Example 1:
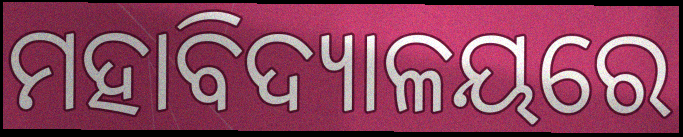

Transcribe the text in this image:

ମହାବିଦ୍ୟାଳୟରେ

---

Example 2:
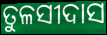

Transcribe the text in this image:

ତୁଳସୀଦାସ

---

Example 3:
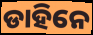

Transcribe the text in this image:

ଡାହିନେ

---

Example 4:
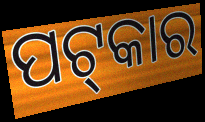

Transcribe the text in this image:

ପଟ୍‌କାର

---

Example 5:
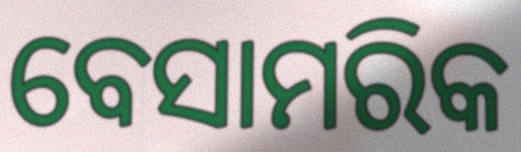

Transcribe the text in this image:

ବେସାମରିକ